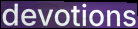
devotions